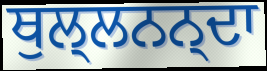
ਥੁਲ੍ਲਨਨ੍ਦਾ